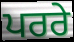
ਪਰਰੇ